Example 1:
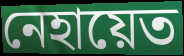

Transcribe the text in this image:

নেহায়েত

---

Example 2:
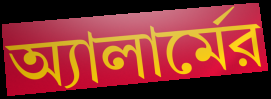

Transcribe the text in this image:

অ্যালার্মের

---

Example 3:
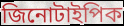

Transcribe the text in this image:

জিনোটাইপিক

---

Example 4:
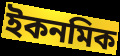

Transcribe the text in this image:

ইকনমিক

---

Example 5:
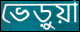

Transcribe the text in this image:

ভেড়ুয়া